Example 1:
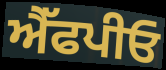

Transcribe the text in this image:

ਐੱਫਪੀਓ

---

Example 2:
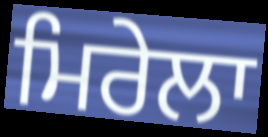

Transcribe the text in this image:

ਮਿਰੇਲਾ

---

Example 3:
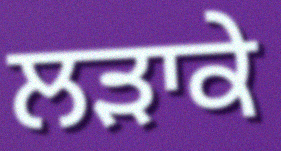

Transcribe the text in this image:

ਲੜਾਕੇ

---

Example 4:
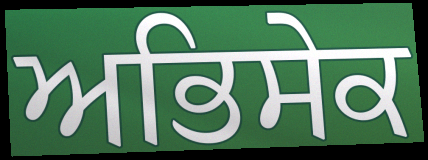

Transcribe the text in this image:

ਅਭਿਸੇਕ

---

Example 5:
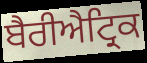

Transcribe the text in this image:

ਬੈਰੀਐਟ੍ਰਿਕ